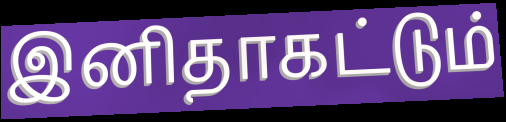
இனிதாகட்டும்